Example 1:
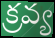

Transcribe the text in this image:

క్రవ్య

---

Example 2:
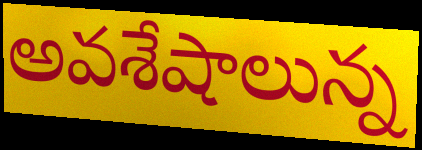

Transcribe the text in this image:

అవశేషాలున్న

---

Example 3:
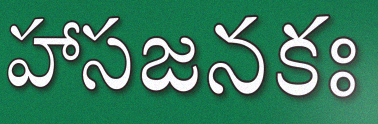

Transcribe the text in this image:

హాసజనకః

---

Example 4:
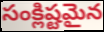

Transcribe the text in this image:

సంక్లిష్టమైన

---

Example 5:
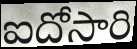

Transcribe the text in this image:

ఐదోసారి